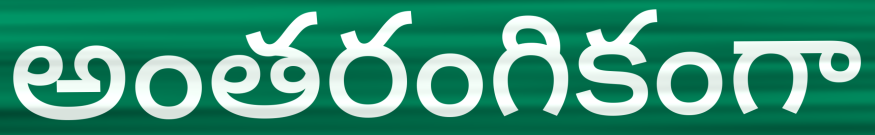
అంతరంగికంగా